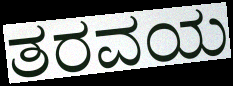
ತರವಯ